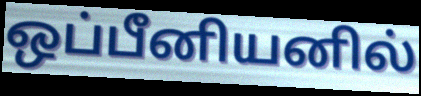
ஒப்பீனியனில்